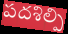
పదశిల్పి